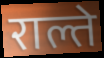
राल्ते